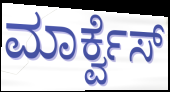
ಮಾರ್ಕ್ವೆಸ್